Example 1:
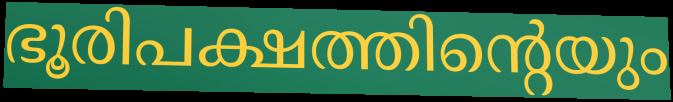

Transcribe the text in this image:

ഭൂരിപക്ഷത്തിന്റെയും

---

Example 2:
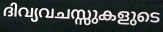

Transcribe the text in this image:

ദിവ്യവചസ്സുകളുടെ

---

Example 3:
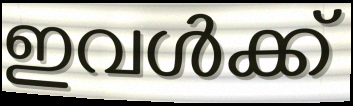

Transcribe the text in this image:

ഇവൾക്ക്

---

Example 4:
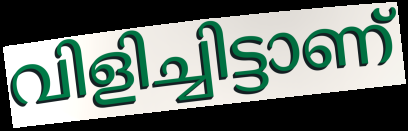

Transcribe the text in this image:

വിളിച്ചിട്ടാണ്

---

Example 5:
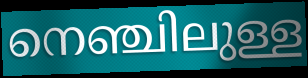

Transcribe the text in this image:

നെഞ്ചിലുള്ള